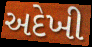
અદેખી